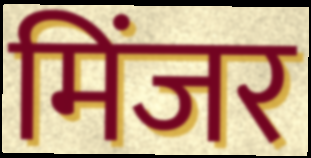
मिंजर